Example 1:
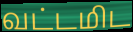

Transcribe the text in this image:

வட்டமிட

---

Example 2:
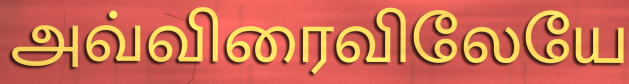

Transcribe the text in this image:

அவ்விரைவிலேயே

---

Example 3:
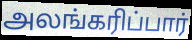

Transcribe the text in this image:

அலங்கரிப்பார்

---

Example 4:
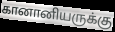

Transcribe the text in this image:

கானானியருக்கு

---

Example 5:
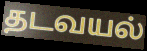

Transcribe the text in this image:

தடவயல்